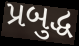
પ્રબુદ્ધ